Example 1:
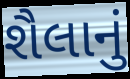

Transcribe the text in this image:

શૈલાનું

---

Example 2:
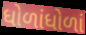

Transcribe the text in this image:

ધોળાંધોળાં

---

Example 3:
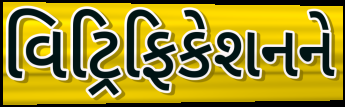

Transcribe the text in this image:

વિટ્રિફિકેશનને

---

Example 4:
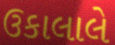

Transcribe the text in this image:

ઉકાલાલે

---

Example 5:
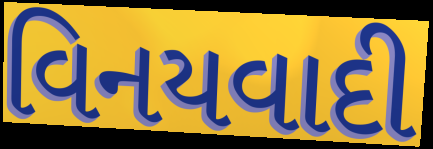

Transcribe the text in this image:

વિનયવાદી